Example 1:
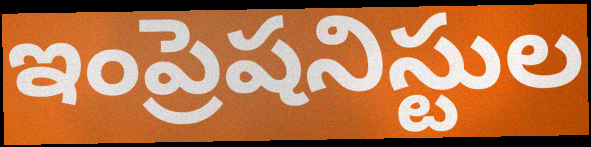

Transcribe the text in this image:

ఇంప్రెషనిస్టుల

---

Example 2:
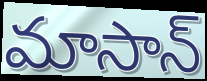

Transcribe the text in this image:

మాసాన్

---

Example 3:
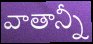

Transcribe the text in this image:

వాతాన్నీ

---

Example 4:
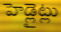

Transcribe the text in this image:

హెడ్లైట్లు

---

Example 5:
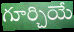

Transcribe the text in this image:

గూర్చియే